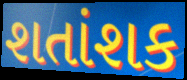
શતાંશક